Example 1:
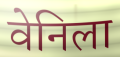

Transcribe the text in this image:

वेनिला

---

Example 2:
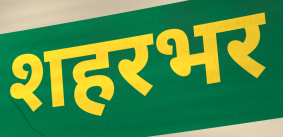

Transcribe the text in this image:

शहरभर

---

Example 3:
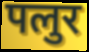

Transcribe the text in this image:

पलुर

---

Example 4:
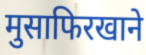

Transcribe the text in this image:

मुसाफिरखाने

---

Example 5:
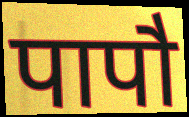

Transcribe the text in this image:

पापौ